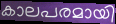
കാലപരമായി